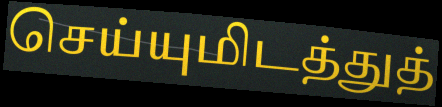
செய்யுமிடத்துத்